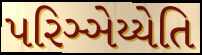
પરિઞ્ઞેય્યેતિ